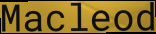
Macleod